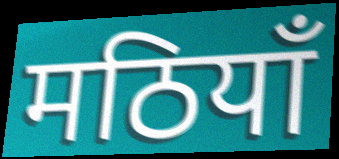
मठियाँ